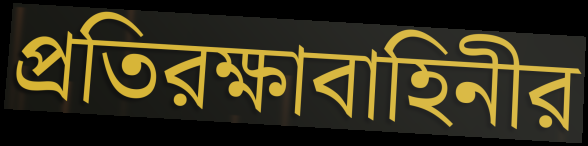
প্রতিরক্ষাবাহিনীর